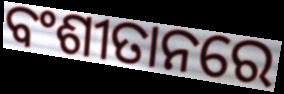
ବଂଶୀତାନରେ